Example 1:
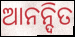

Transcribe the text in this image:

ଆନନ୍ଦିତ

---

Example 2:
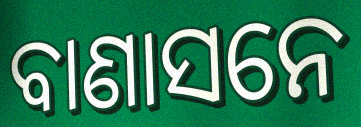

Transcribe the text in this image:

ବାଣାସନେ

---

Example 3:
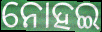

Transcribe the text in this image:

ନୋହଇ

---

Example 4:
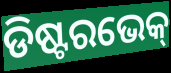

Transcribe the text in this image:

ଡିଷ୍ଟରଭେକ୍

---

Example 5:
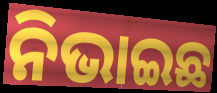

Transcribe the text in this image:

ନିଭାଇଛ